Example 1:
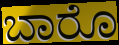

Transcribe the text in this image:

ಬಾರೊ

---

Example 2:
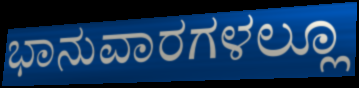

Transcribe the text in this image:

ಭಾನುವಾರಗಳಲ್ಲೂ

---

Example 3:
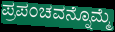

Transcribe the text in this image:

ಪ್ರಪಂಚವನ್ನೊಮ್ಮೆ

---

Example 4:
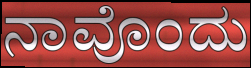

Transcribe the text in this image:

ನಾವೊಂದು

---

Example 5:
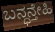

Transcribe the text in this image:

ಬನ್ಧನ್ತೇಹಿ